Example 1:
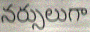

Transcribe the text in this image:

నర్సులుగా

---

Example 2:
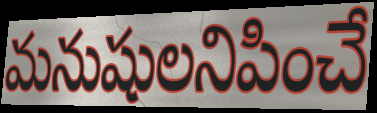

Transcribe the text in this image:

మనుషులనిపించే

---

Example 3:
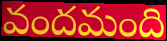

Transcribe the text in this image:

వందమంది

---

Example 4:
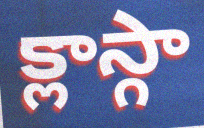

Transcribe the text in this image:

క్లాస్గా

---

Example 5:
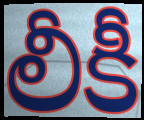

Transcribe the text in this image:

లీకీ